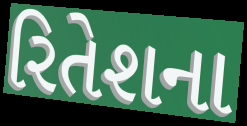
રિતેશના